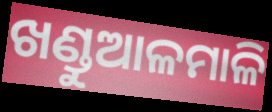
ଖଣ୍ଡୁଆଳମାଳି